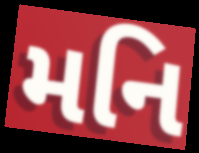
મનિ